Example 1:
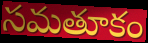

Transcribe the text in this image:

సమతూకం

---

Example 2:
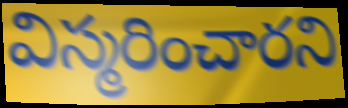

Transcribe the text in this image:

విస్మరించారని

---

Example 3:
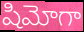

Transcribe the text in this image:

షిమోగా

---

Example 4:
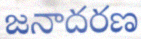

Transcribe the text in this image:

జనాదరణ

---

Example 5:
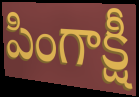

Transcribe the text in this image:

పింగాక్షీ